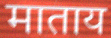
माताय